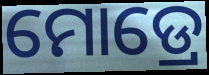
ମୋଡ୍ରେ